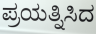
ಪ್ರಯತ್ನಿಸಿದ